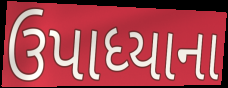
ઉપાધ્યાના